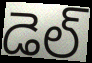
డెల్